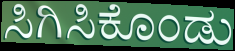
ಸಿಗಿಸಿಕೊಂಡು